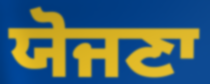
ਯੋਜਣਾ